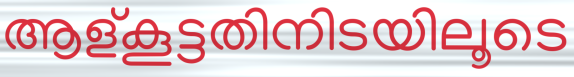
ആള്കൂട്ടതിനിടയിലൂടെ